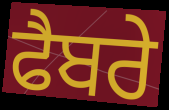
ਫੈਬਰੇ